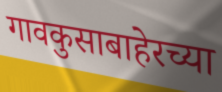
गावकुसाबाहेरच्या